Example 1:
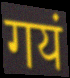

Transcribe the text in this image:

गयं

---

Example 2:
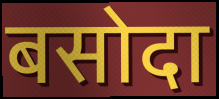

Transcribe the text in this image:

बसोदा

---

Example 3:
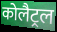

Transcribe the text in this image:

कोलैट्रल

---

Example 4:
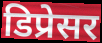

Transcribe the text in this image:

डिप्रेसर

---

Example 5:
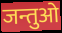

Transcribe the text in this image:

जन्तुओ